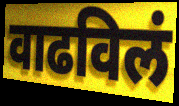
वाढविलं